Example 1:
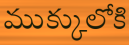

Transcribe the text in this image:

ముక్కులోకి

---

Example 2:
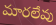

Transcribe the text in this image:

మారలేవు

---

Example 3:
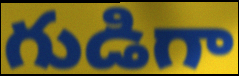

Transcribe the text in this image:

గుడిగా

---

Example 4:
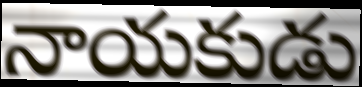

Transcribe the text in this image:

నాయకుడు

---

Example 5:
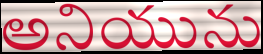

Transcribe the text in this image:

అనియును